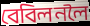
বেবিলনলৈ